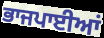
ਭਾਜਪਾਈਆਂ